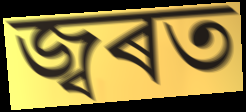
জ্বৰত